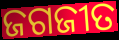
ଜଗଜୀତ